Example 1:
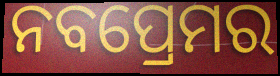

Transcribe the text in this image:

ନବପ୍ରେମର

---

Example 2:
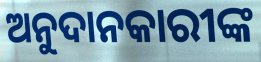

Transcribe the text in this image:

ଅନୁଦାନକାରୀଙ୍କ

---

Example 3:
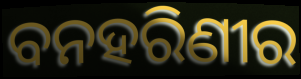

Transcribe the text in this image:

ବନହରିଣୀର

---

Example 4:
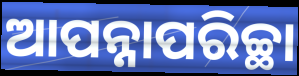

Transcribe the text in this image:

ଆପନ୍ନାପରିଚ୍ଛା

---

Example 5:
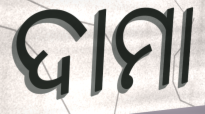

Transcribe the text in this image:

ଦାମା